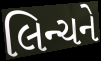
લિન્ચને